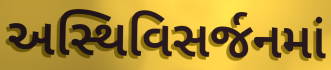
અસ્થિવિસર્જનમાં